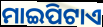
ମାଇପିଟାଏ